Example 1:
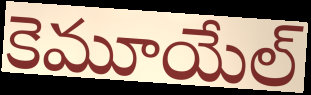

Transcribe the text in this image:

కెమూయేల్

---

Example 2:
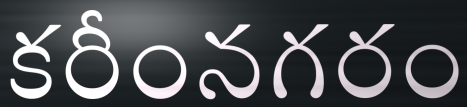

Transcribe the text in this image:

కరీంనగరం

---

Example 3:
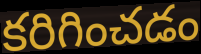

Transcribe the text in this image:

కరిగించడం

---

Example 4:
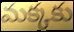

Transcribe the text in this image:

మక్కకు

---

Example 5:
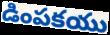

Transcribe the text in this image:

డింపకయు